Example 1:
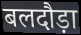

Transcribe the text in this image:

बलदौड़ा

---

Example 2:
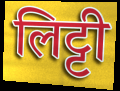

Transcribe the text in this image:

लिट्टी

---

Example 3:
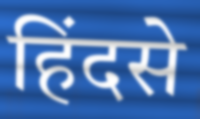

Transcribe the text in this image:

हिंदसे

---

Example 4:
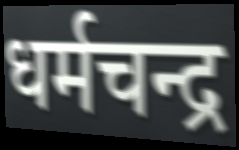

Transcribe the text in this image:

धर्मचन्द्र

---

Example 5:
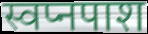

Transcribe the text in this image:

स्वप्नपाश